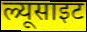
ल्यूसाइट